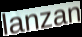
lanzan